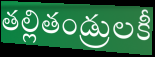
తల్లితండ్రులకీ